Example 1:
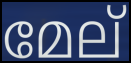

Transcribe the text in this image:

മേല്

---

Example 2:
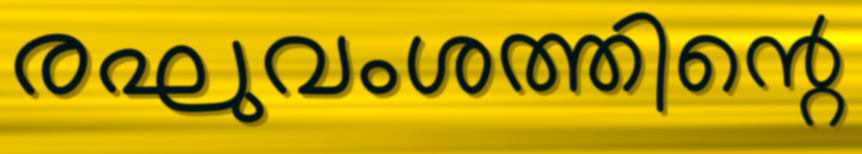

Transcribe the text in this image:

രഘുവംശത്തിന്റെ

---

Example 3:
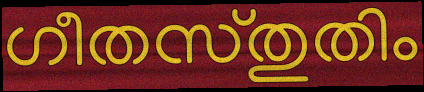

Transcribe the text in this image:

ഗീതസ്തുതിം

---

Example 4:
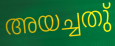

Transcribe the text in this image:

അയച്ചതു്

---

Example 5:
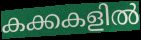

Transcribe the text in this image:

കക്കകളിൽ